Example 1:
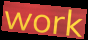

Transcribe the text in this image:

work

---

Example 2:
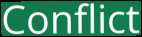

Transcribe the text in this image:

Conflict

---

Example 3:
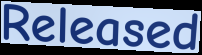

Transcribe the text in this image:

Released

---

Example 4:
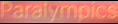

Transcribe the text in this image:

Paralympics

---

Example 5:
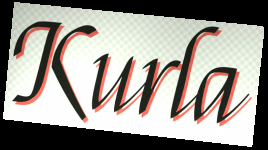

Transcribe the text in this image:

Kurla